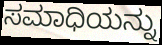
ಸಮಾಧಿಯನ್ನು